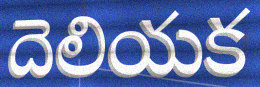
దెలియక